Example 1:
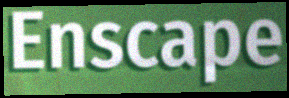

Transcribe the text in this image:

Enscape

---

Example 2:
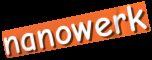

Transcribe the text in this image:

nanowerk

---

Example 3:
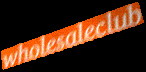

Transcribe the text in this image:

wholesaleclub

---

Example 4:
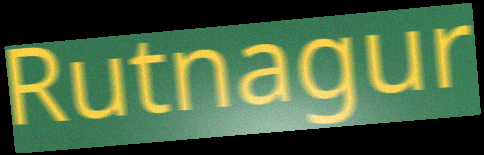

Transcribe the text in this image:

Rutnagur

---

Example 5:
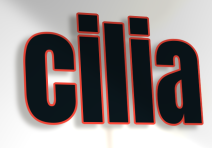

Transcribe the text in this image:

cilia